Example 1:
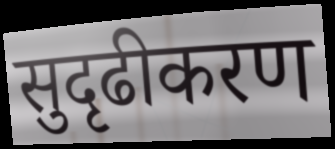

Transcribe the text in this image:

सुदृढीकरण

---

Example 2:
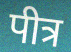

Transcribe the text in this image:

पीत्र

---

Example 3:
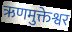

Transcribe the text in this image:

ऋणमुक्तेश्वर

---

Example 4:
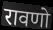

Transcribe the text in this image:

रावणो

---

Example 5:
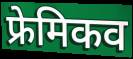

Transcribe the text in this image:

फ्रेमिकव